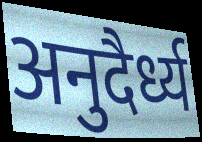
अनुदैर्ध्य